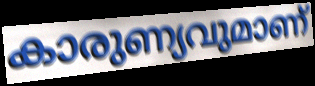
കാരുണ്യവുമാണ്